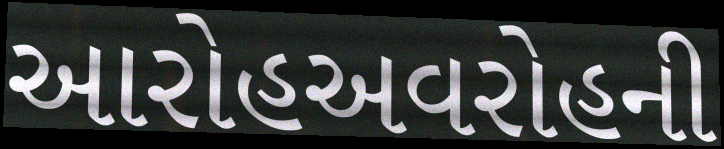
આરોહઅવરોહની